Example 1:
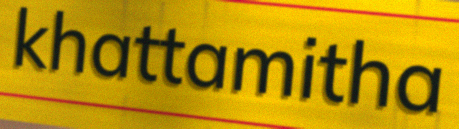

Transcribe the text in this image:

khattamitha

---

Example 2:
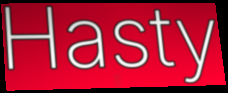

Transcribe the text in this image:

Hasty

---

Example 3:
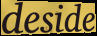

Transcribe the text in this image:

deside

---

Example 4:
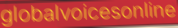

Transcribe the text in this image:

globalvoicesonline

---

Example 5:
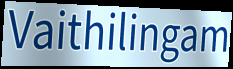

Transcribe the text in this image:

Vaithilingam